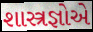
શાસ્ત્રજ્ઞોએ